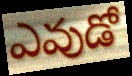
ఎవుడో